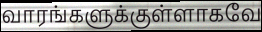
வாரங்களுக்குள்ளாகவே